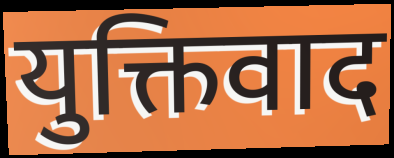
युक्तिवाद